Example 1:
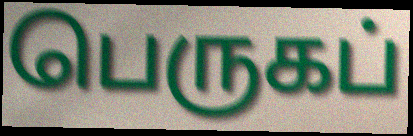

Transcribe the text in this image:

பெருகப்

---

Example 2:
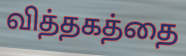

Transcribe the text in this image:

வித்தகத்தை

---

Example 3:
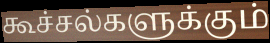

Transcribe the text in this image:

கூச்சல்களுக்கும்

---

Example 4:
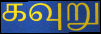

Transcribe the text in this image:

கவுறு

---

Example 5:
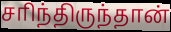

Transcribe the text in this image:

சரிந்திருந்தான்